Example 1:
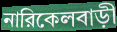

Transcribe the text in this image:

নারিকেলবাড়ী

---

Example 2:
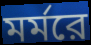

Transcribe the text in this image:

মর্মরে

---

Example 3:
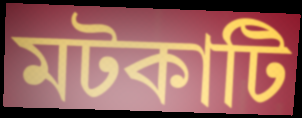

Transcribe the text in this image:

মটকাটি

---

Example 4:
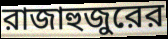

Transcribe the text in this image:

রাজাহুজুরের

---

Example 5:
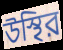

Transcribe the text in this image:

উস্থির